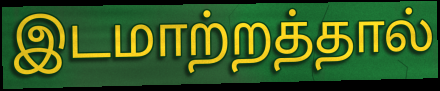
இடமாற்றத்தால்